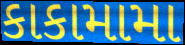
કાકામામા